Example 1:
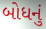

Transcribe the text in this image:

બોધનું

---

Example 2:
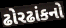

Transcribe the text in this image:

ઢોરઢાંકનો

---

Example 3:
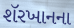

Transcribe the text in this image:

શૅરખાનના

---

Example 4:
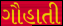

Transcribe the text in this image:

ગૌહાતી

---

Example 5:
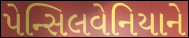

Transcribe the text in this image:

પેન્સિલવેનિયાને